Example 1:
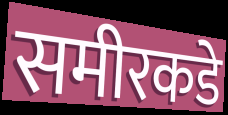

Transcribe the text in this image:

समीरकडे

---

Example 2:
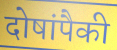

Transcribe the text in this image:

दोषांपैकी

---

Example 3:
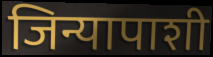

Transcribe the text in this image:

जिन्यापाशी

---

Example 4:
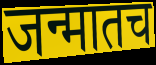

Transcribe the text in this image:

जन्मातच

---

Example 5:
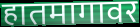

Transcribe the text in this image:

हातमागावर